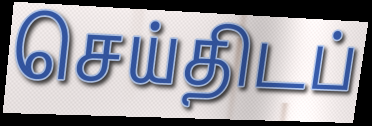
செய்திடப்